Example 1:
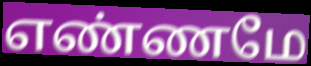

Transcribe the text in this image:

எண்ணமே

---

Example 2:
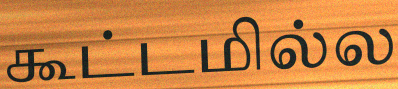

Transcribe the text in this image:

கூட்டமில்ல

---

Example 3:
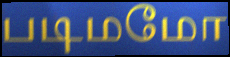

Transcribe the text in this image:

படிமமோ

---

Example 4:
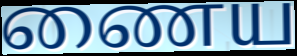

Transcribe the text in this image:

ணைய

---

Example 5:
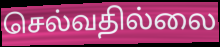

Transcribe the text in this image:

செல்வதில்லை